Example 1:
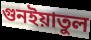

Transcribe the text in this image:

গুনইয়াতুল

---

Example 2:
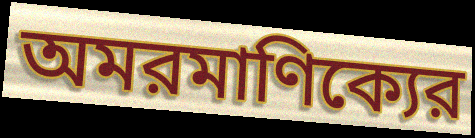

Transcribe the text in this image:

অমরমাণিক্যের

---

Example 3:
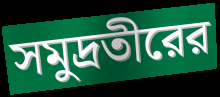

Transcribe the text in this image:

সমুদ্রতীরের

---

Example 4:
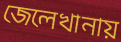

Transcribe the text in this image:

জেলেখানায়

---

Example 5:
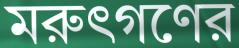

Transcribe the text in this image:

মরুৎগণের